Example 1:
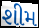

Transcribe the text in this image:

શીમ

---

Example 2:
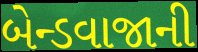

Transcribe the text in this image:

બેન્ડવાજાની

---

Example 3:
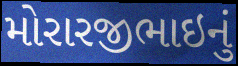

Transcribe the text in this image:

મોરારજીભાઇનું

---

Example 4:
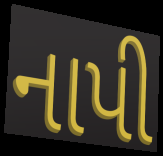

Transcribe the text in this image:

નાપી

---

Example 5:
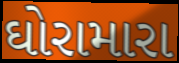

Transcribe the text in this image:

ઘોરામારા